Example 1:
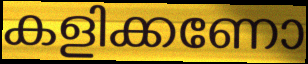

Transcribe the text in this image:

കളിക്കണോ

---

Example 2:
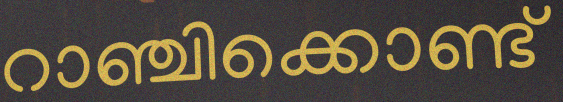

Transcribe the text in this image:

റാഞ്ചിക്കൊണ്ട്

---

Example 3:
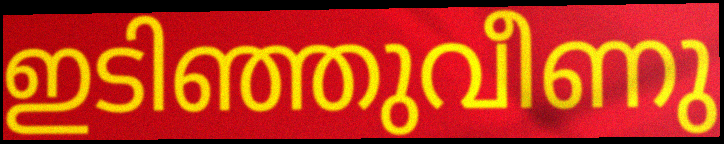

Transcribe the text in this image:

ഇടിഞ്ഞുവീണു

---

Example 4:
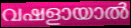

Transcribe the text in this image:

വഷളായാൽ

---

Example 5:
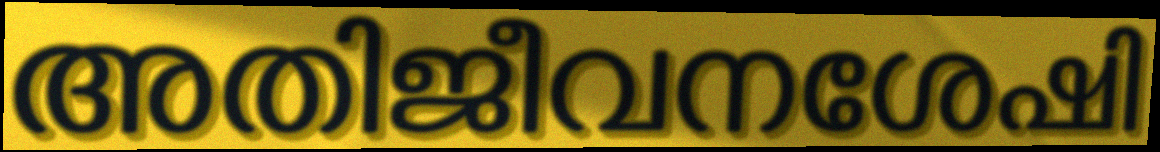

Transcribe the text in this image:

അതിജീവനശേഷി